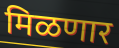
मिळणार